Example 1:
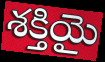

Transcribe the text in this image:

శక్తియై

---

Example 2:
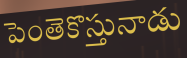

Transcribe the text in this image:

పెంతెకొస్తునాడు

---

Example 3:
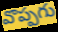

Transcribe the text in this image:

వొప్పగు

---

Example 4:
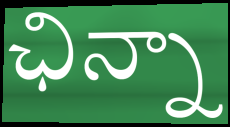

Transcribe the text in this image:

ఛిన్నా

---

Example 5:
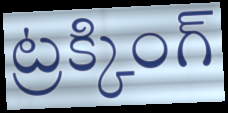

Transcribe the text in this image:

ట్రక్కింగ్